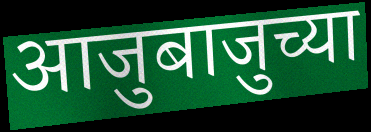
आजुबाजुच्या